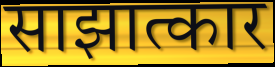
साझात्कार